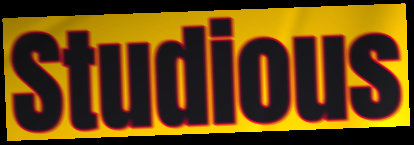
Studious